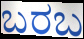
ಬರಬ